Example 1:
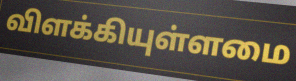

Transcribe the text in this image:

விளக்கியுள்ளமை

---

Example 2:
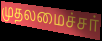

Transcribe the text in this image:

முதலமைச்சர்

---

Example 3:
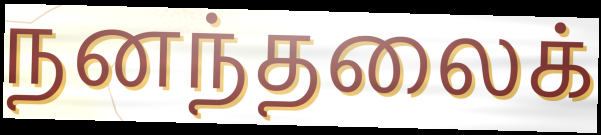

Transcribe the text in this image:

நனந்தலைக்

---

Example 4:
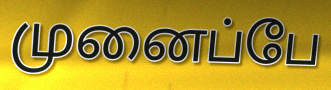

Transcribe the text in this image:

முனைப்பே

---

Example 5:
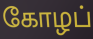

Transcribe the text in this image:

கோழப்